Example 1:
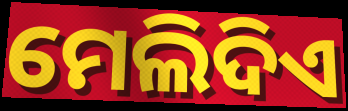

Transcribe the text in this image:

ମେଲିଦିଏ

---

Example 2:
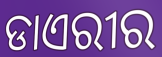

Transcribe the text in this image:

ଡାଏରୀର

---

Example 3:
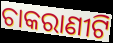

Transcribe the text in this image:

ଚାକରାଣୀଟି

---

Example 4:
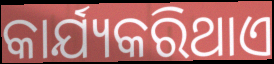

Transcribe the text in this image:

କାର୍ଯ୍ୟକରିଥାଏ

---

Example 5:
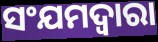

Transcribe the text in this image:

ସଂଯମଦ୍ୱାରା